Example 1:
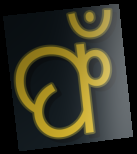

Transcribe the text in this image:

ଫଁ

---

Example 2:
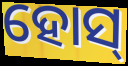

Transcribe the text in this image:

ହୋସ୍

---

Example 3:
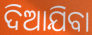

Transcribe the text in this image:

ଦିଆଯିବା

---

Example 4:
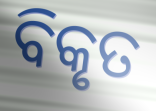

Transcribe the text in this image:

ବିକୃତ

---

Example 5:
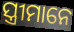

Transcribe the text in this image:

ସ୍ତ୍ରୀମାନେ